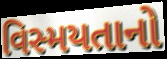
વિસ્મયતાનો